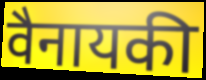
वैनायकी